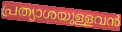
പ്രത്യാശയുള്ളവൻ